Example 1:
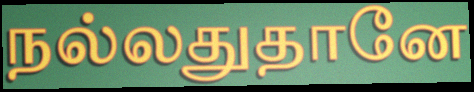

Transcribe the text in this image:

நல்லதுதானே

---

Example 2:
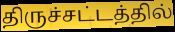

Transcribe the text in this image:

திருச்சட்டத்தில்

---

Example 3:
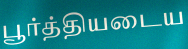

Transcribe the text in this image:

பூர்த்தியடைய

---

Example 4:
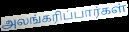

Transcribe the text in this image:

அலங்கரிப்பார்கள்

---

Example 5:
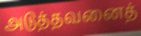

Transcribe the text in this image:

அடுத்தவனைத்